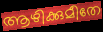
ആഴിക്കുമീതേ